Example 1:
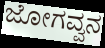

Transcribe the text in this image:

ಜೋಗವ್ವನ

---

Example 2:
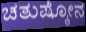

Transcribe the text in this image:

ಚತುಷ್ಕೋನ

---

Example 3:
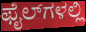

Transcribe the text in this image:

ಫೈಲ್‌ಗಳಲ್ಲಿ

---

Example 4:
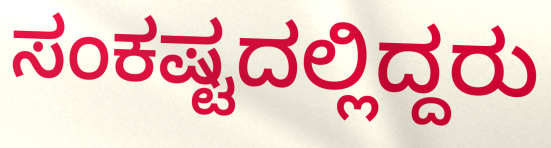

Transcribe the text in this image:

ಸಂಕಷ್ಟದಲ್ಲಿದ್ದರು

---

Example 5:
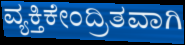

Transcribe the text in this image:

ವ್ಯಕ್ತಿಕೇಂದ್ರಿತವಾಗಿ